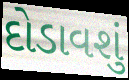
દોડાવશું